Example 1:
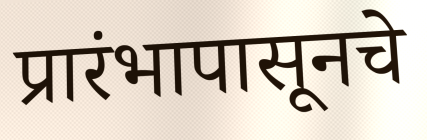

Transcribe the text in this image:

प्रारंभापासूनचे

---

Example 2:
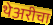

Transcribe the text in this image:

थेअरीचा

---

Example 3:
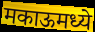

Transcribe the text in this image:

मकाऊमध्ये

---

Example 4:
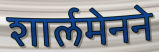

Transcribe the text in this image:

शार्लमेनने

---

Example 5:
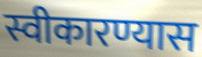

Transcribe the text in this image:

स्वीकारण्यास